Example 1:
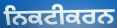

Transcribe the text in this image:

ਨਿਕਟੀਕਰਨ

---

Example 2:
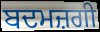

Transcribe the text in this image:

ਬਦਮਜ਼ਗੀ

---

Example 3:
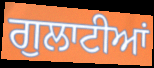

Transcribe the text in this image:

ਗੁਲਾਟੀਆਂ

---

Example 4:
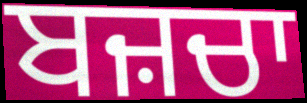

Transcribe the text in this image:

ਬਜ਼ਚਾ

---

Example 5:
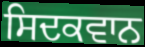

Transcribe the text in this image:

ਸਿਦਕਵਾਨ